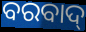
ବରବାଦ୍